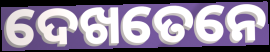
ଦେଖତେନେ